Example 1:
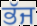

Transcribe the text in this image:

ਭੱਜ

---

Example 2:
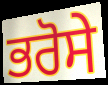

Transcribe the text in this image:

ਭਰੋਸੇ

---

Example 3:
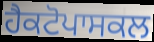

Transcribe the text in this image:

ਹੈਕਟੋਪਾਸਕਲ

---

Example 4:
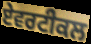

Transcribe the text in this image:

ਏਵਰਟੀਕਲ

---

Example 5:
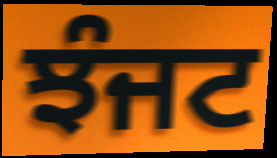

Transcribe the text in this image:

ਝੰਜਟ